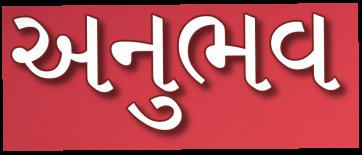
અનુભવ